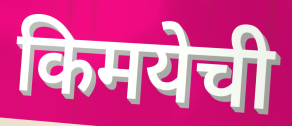
किमयेची